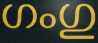
ഗംഗു